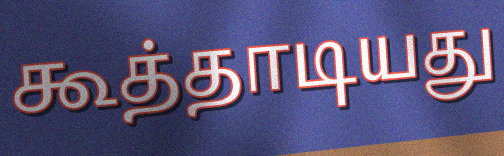
கூத்தாடியது